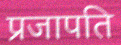
प्रजापति